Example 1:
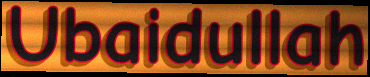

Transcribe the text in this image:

Ubaidullah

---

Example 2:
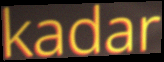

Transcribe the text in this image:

kadar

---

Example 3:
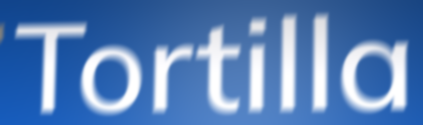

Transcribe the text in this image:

Tortilla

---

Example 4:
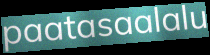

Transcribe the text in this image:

paatasaalalu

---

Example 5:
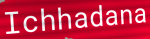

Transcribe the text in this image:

Ichhadana